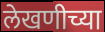
लेखणीच्या